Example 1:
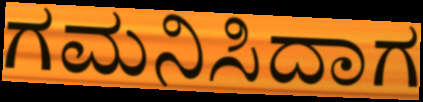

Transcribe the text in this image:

ಗಮನಿಸಿದಾಗ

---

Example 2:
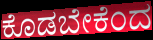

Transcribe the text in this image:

ಕೊಡಬೇಕೆಂದ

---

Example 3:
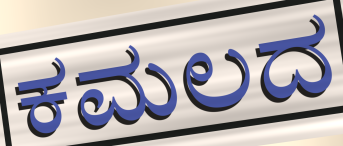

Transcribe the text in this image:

ಕಮಲದ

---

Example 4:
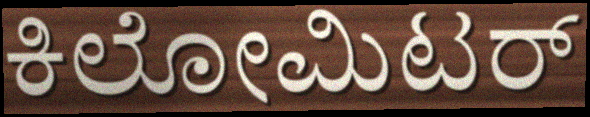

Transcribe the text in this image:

ಕಿಲೋಮಿಟರ್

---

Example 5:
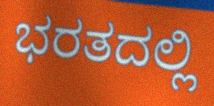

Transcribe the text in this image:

ಭರತದಲ್ಲಿ